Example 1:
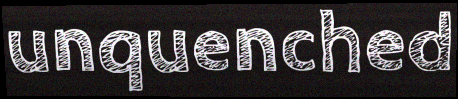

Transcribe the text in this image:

unquenched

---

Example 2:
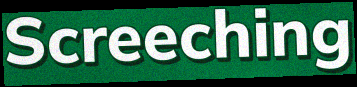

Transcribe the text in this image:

Screeching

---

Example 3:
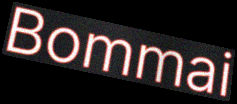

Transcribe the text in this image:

Bommai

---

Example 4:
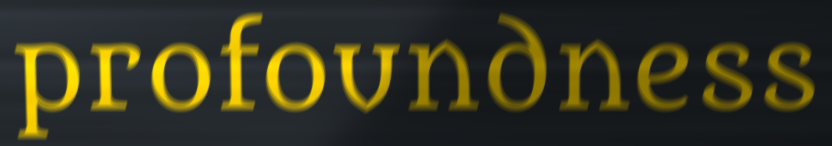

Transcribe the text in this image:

profoundness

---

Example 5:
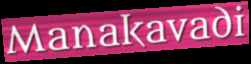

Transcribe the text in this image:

Manakavadi